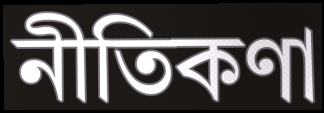
নীতিকণা